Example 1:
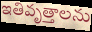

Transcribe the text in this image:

ఇతివృత్తాలను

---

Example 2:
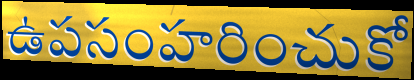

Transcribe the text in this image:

ఉపసంహరించుకో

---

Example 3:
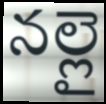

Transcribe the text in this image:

నల్లై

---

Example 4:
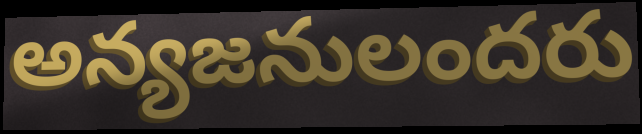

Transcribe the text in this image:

అన్యజనులందరు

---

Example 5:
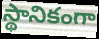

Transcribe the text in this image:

స్థానికంగా